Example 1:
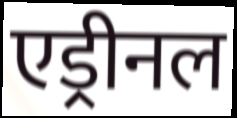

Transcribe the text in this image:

एड्रीनल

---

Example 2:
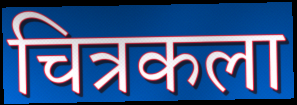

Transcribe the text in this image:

चित्रकला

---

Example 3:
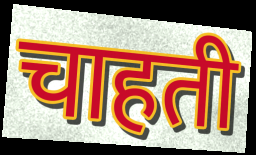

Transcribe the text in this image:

चाहती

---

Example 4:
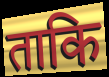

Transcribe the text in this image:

ताकि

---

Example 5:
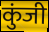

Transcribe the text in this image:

कुंजी